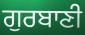
ਗੁਰਬਾਣੀ